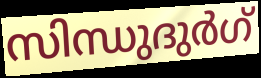
സിന്ധുദുർഗ്